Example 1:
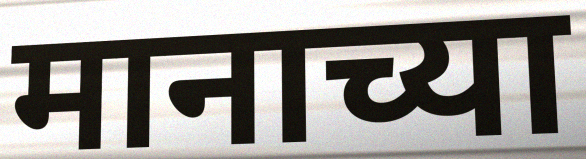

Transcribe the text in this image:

मानाच्या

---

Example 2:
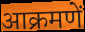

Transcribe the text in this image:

आक्रमणें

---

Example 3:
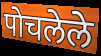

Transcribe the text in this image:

पोचलेले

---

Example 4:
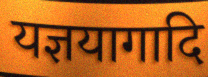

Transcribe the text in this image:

यज्ञयागादि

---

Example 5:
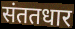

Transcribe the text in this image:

संततधार